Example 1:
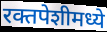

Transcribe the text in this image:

रक्तपेशीमध्ये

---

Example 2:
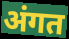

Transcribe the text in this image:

अंगत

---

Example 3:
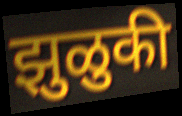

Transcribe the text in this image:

झुळुकी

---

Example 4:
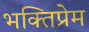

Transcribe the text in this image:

भक्तिप्रेम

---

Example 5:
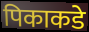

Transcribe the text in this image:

पिकाकडे